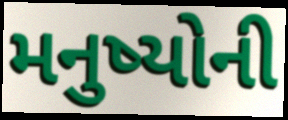
મનુષ્યોની